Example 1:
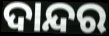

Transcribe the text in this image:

ଦାନ୍ଦର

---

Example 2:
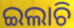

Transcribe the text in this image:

ଇଲାଚି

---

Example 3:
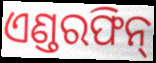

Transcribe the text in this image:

ଏଣ୍ଡରଫିନ୍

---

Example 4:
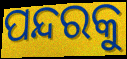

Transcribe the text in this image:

ପନ୍ଦରକୁ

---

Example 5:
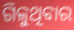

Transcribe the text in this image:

ଗିଳୁଥିବାର